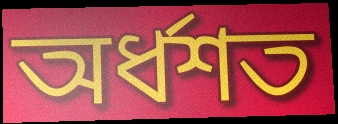
অর্ধশত